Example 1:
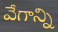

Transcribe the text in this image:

వేగాన్ని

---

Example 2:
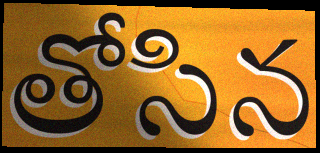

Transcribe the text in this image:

తోసిన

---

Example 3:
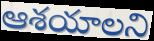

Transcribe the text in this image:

ఆశయాలని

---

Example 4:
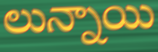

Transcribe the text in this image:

లున్నాయి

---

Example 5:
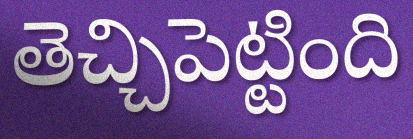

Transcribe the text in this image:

తెచ్చిపెట్టింది